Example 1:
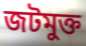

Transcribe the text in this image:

জটমুক্ত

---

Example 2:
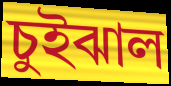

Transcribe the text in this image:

চুইঝাল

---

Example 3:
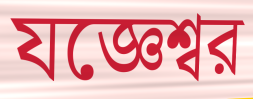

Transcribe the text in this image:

যজ্ঞেশ্বর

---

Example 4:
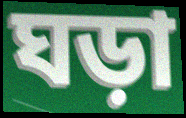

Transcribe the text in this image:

ঘড়া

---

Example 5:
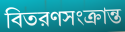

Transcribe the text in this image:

বিতরণসংক্রান্ত